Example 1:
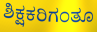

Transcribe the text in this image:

ಶಿಕ್ಷಕರಿಗಂತೂ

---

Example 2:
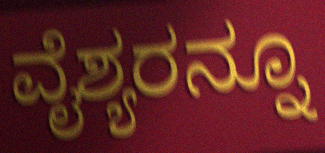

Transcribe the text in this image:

ವೈಶ್ಯರನ್ನೂ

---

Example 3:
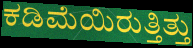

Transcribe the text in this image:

ಕಡಿಮೆಯಿರುತ್ತಿತ್ತು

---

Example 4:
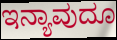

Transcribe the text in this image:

ಇನ್ಯಾವುದೂ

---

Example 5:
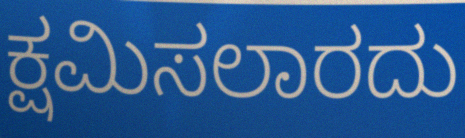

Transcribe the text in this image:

ಕ್ಷಮಿಸಲಾರದು